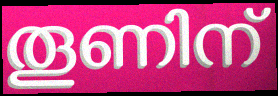
തൂണിന്